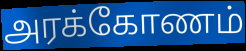
அரக்கோணம்